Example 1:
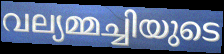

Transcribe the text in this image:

വല്യമ്മച്ചിയുടെ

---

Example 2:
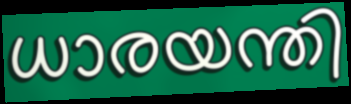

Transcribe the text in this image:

ധാരയന്തി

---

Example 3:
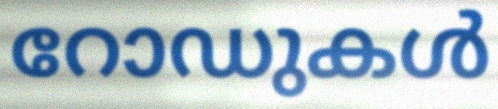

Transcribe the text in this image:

റോഡുകൾ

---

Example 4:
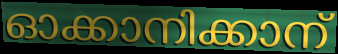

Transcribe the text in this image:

ഓക്കാനിക്കാന്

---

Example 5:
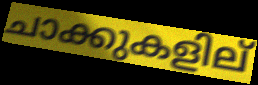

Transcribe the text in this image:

ചാക്കുകളില്